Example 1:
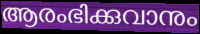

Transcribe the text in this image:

ആരംഭിക്കുവാനും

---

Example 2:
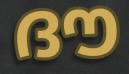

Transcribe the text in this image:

ദൗ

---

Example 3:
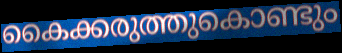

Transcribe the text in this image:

കൈക്കരുത്തുകൊണ്ടും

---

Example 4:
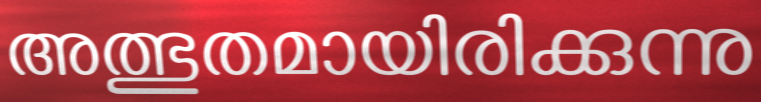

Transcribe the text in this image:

അത്ഭുതമായിരിക്കുന്നു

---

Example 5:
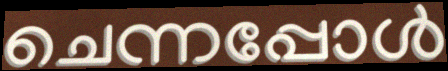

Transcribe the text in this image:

ചെന്നപ്പോൾ